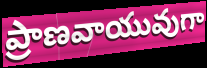
ప్రాణవాయువుగా